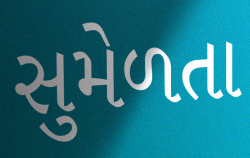
સુમેળતા